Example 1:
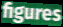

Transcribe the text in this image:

figures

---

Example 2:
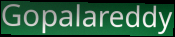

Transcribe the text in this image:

Gopalareddy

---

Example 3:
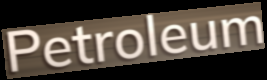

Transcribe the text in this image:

Petroleum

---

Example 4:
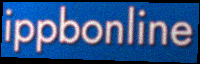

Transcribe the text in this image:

ippbonline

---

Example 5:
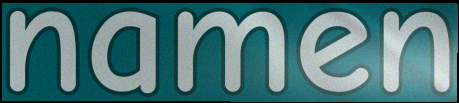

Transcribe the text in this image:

namen